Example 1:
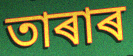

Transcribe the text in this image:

তাৰাৰ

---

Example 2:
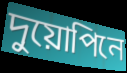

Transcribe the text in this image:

দুয়োপিনে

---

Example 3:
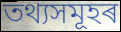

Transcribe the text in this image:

তথ্যসমূহৰ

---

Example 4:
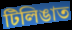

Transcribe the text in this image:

টিলিঙাত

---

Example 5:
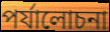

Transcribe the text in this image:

পৰ্যালোচনা